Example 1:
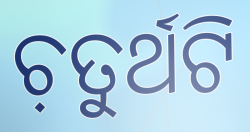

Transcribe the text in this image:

ଚ଼ତୁର୍ଥଟି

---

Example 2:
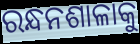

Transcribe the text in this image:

ରନ୍ଧନଶାଳାକୁ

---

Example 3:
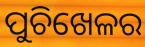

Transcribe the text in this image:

ପୁଚିଖେଳର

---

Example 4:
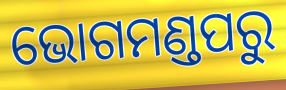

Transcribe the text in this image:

ଭୋଗମଣ୍ଡପରୁ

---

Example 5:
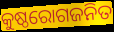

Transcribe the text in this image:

କୁଷ୍ଠରୋଗଜନିତ